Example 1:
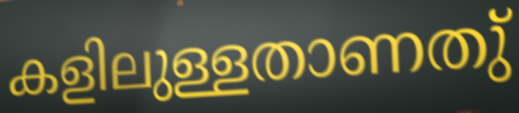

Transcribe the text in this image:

കളിലുള്ളതാണതു്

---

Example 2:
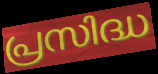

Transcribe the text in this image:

പ്രസിദ്ധ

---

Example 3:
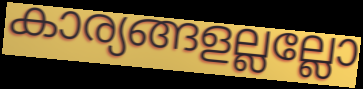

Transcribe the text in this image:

കാര്യങ്ങളല്ലല്ലോ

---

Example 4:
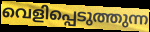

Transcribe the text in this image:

വെളിപ്പെടുത്തുന്ന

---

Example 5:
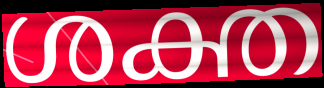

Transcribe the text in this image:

ശക്ത